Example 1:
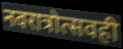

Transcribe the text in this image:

नवरात्रोत्सवही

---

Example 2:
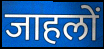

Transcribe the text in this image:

जाहलों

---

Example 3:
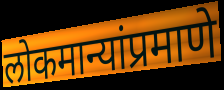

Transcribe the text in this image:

लोकमान्यांप्रमाणे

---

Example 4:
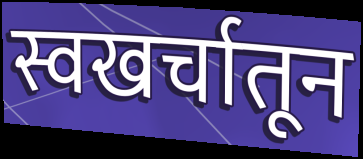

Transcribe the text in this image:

स्वखर्चातून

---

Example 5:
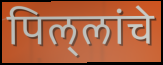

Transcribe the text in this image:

पिल्लांचे